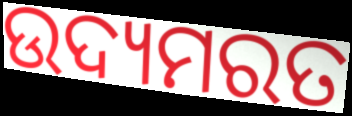
ଉଦ୍ୟମରତ